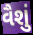
વૈશું